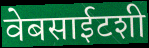
वेबसाईटशी